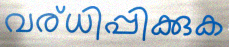
വര്ധിപ്പിക്കുക